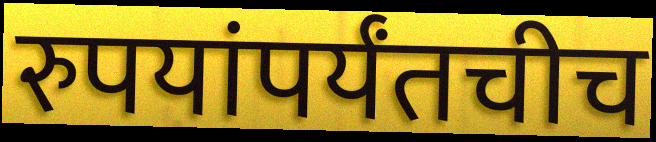
रुपयांपर्यंतचीच